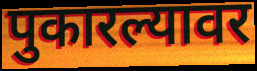
पुकारल्यावर